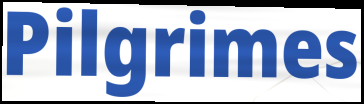
Pilgrimes